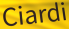
Ciardi